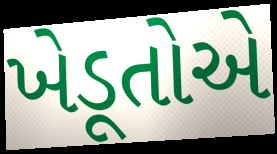
ખેડૂતોએ